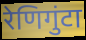
रेणिगुंटा